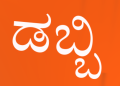
ಡಬ್ಬಿ